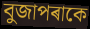
বুজাপৰাকে